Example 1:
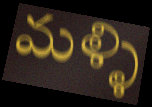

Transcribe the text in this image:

మళ్ళి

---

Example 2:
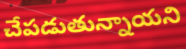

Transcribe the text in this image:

చేపడుతున్నాయని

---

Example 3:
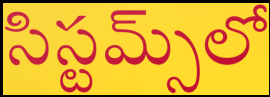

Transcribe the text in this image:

సిస్టమ్స్‌లో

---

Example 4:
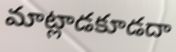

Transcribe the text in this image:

మాట్లాడకూడదా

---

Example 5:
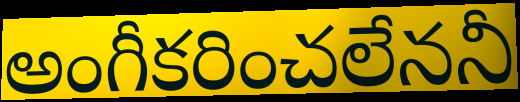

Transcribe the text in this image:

అంగీకరించలేననీ